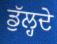
ਡੁੱਲ੍ਹਦੇ